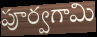
పూర్వగామి